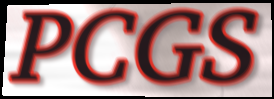
PCGS